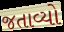
જતાવ્યો